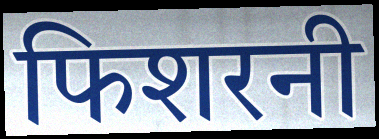
फिशरनी